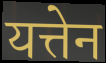
यत्तेन